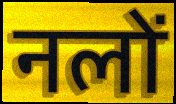
नलों